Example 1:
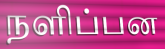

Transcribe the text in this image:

நளிப்பன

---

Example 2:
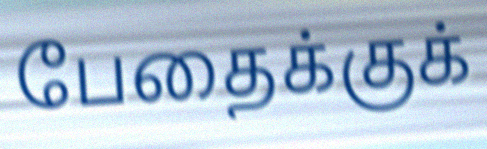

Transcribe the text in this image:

பேதைக்குக்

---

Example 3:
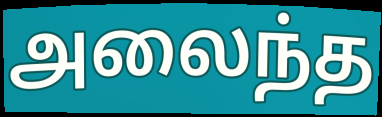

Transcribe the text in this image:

அலைந்த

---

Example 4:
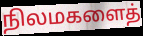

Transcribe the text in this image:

நிலமகளைத்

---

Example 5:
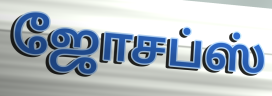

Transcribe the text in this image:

ஜோசப்ஸ்